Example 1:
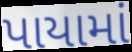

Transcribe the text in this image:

પાયામાં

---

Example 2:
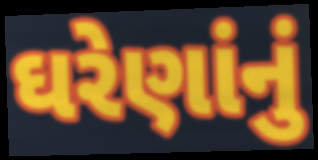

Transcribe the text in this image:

ઘરેણાંનું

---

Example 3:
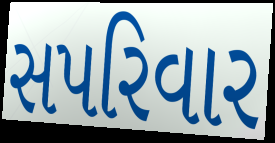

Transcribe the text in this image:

સપરિવાર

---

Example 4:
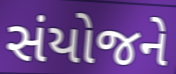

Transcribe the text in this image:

સંયોજને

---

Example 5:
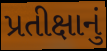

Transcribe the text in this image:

પ્રતીક્ષાનું